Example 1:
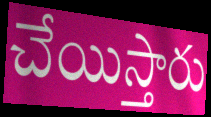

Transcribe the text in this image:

చేయిస్తారు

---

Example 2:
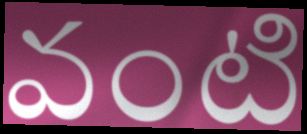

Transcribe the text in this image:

వంటి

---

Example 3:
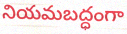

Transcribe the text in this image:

నియమబద్ధంగా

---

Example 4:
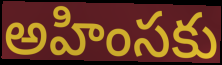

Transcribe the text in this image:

అహింసకు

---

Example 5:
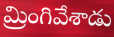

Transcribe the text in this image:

మ్రింగివేశాడు